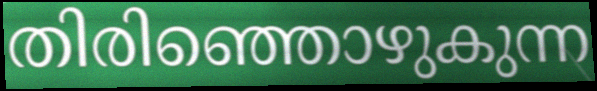
തിരിഞ്ഞൊഴുകുന്ന